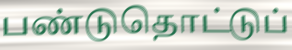
பண்டுதொட்டுப்